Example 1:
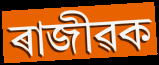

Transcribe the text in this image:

ৰাজীৱক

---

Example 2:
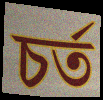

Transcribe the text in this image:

চৰ্ত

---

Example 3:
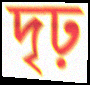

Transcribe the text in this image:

দৃঢ়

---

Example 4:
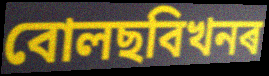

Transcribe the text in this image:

বোলছবিখনৰ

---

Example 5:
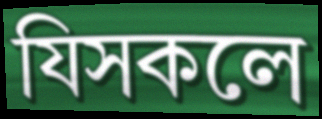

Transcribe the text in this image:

যিসকলে